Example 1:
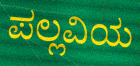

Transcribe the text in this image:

ಪಲ್ಲವಿಯ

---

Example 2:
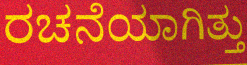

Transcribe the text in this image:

ರಚನೆಯಾಗಿತ್ತು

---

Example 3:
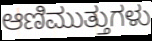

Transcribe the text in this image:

ಆಣಿಮುತ್ತುಗಳು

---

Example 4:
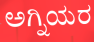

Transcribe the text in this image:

ಅಗ್ನಿಯರ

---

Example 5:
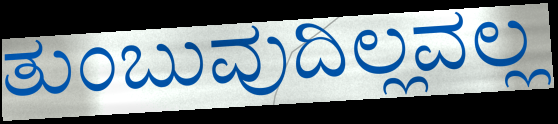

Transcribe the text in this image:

ತುಂಬುವುದಿಲ್ಲವಲ್ಲ